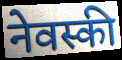
नेवस्की